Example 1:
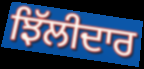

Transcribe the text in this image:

ਝਿੱਲੀਦਾਰ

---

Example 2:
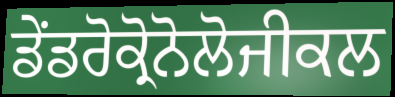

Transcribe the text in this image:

ਡੇਂਡਰੋਕ੍ਰੋਨੋਲੋਜੀਕਲ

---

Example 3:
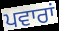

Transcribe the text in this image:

ਪਵਾਰਾਂ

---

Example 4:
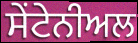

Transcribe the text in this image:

ਸੇਂਟੇਨੀਅਲ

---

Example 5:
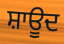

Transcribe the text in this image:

ਸ਼ਾਊਦ